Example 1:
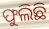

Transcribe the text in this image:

ଫୁଲିଛି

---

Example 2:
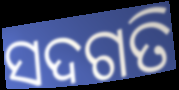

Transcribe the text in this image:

ସଦଗତି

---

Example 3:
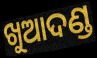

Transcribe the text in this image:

ଖୁଆଦଣ୍ଡ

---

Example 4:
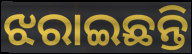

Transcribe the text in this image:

ଝରାଇଛନ୍ତି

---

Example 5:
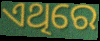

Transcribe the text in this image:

ଏଥିରେ